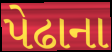
પેઢાના